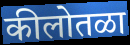
कीलोतळा